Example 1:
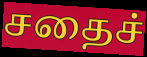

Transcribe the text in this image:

சதைச்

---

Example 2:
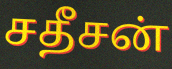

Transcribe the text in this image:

சதீசன்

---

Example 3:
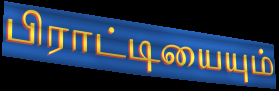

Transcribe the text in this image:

பிராட்டியையும்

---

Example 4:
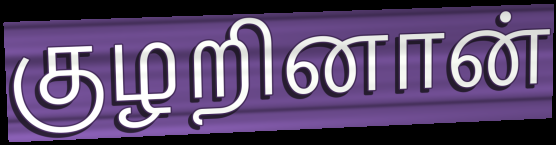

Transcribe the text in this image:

குழறினான்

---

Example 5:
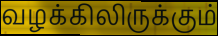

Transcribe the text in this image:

வழக்கிலிருக்கும்